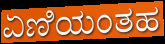
ಏಣಿಯಂತಹ